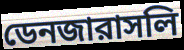
ডেনজারাসলি